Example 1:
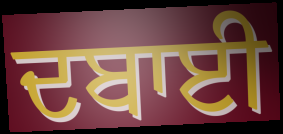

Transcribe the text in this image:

ਦਬਾਈ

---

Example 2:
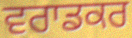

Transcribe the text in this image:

ਵਰਾਡਕਰ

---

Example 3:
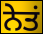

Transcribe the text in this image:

ਨੇਤਂ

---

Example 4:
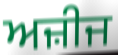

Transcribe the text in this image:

ਅਜ਼ੀਜ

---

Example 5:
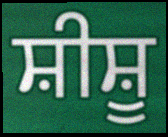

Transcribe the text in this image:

ਸ਼ੀਸ਼ੂ